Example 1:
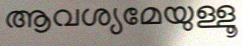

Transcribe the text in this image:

ആവശ്യമേയുള്ളൂ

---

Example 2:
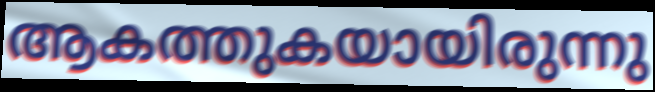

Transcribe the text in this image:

ആകത്തുകയായിരുന്നു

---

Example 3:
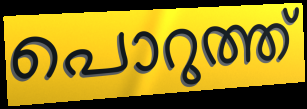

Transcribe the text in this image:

പൊറുത്ത്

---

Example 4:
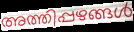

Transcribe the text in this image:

അത്തിപ്പഴങ്ങൾ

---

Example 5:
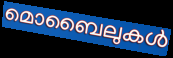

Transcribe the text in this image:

മൊബൈലുകൾ